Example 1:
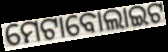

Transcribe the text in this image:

ମେଟାବୋଲାଇଟ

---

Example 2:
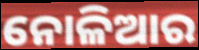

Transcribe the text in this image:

ନୋଳିଆର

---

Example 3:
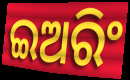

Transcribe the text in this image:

ଇଅରିଂ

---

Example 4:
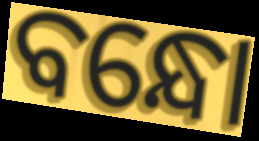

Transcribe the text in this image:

ବନ୍ଧୋ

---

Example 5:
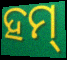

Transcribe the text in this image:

ହମ୍